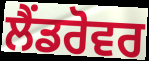
ਲੈਂਡਰੋਵਰ